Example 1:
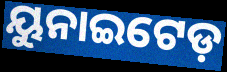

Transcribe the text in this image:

ୟୁନାଇଟେଡ଼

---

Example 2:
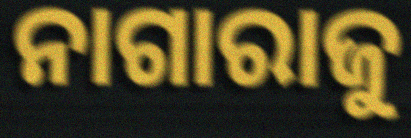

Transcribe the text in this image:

ନାଗାରାଜୁ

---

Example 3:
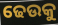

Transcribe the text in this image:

ଢେଉକୁ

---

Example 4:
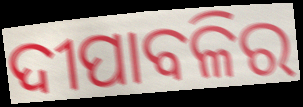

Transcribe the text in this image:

ଦୀପାବଳିର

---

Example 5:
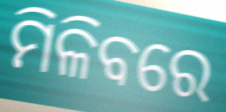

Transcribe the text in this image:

ମିଳିବରେ